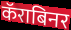
कॅराबिनर